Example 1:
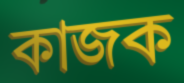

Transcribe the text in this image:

কাজক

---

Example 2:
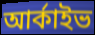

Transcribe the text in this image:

আৰ্কাইভ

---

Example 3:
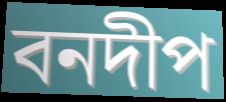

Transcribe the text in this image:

বনদীপ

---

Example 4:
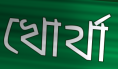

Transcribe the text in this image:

খোৰ্থা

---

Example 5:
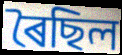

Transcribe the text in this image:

ৰৈছিল